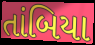
તાંબિયા